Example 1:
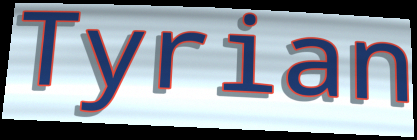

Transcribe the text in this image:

Tyrian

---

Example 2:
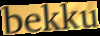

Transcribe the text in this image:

bekku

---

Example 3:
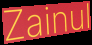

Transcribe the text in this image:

Zainul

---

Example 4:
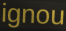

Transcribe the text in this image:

ignou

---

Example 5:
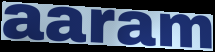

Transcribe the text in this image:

aaram